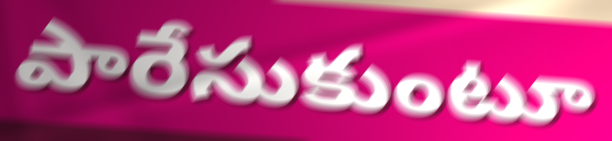
పారేసుకుంటూ